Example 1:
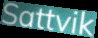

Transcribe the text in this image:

Sattvik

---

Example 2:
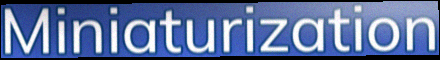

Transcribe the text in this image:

Miniaturization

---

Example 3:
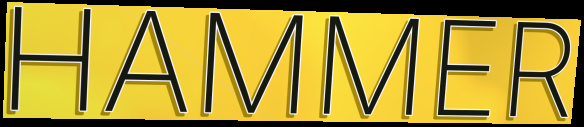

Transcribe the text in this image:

HAMMER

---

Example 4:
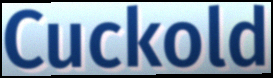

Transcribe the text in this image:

Cuckold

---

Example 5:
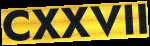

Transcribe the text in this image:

CXXVII